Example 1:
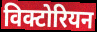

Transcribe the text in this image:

विक्टोरियन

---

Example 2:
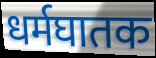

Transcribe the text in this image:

धर्मघातक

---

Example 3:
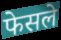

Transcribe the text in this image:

फेसले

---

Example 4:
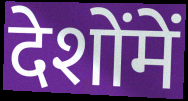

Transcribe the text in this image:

देशोंमें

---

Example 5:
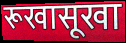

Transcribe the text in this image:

रूखासूखा